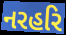
નરહરિ